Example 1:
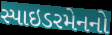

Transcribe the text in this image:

સ્પાઇડરમેનનો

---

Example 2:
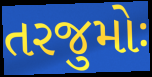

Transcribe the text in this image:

તરજુમોઃ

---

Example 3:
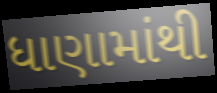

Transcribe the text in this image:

ધાણામાંથી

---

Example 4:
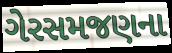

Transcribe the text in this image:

ગેરસમજણના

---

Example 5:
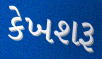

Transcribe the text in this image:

કેખશરૂ